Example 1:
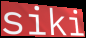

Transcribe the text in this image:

siki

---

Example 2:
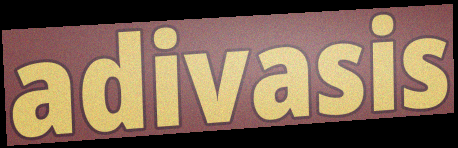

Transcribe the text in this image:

adivasis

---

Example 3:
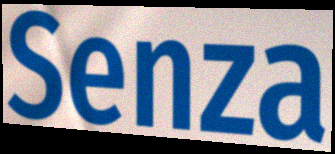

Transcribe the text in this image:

Senza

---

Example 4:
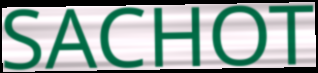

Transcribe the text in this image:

SACHOT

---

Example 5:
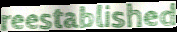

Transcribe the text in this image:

reestablished